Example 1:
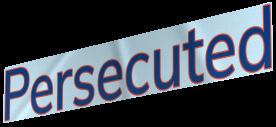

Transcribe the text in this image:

Persecuted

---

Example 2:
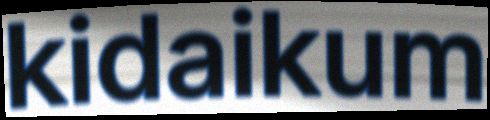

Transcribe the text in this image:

kidaikum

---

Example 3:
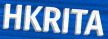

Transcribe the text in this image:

HKRITA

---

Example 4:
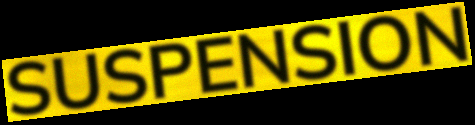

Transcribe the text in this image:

SUSPENSION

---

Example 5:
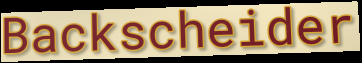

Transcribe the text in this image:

Backscheider